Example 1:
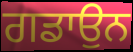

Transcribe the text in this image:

ਗਡਾਉਨ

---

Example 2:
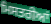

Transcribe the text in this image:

ਮਿਸਤਰੀਆਂ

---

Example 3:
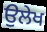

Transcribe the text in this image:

ਉਲੇਖ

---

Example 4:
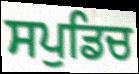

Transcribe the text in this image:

ਸਪੁਡਿਚ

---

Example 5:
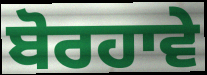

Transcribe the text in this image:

ਬੋਰਹਾਵੇ